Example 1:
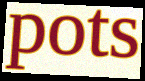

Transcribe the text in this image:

pots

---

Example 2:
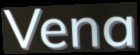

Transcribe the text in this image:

Vena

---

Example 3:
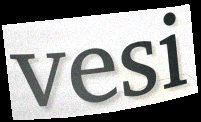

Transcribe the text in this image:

vesi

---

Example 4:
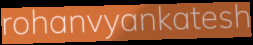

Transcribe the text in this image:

rohanvyankatesh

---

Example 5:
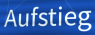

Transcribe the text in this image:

Aufstieg